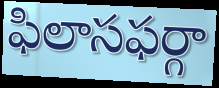
ఫిలాసఫర్గా